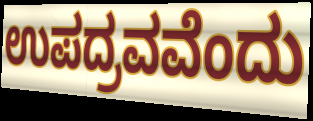
ಉಪದ್ರವವೆಂದು